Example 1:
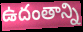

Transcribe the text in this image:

ఉదంతాన్ని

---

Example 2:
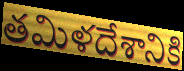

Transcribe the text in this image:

తమిళదేశానికి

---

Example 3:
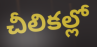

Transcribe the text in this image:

చీలికల్లో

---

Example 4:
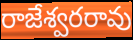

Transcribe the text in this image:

రాజేశ్వరరావు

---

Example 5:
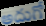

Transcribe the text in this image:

అదుగో